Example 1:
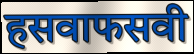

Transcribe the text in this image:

हसवाफसवी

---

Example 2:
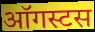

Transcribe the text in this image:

ऑगस्टस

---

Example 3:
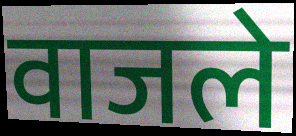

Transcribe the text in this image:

वाजले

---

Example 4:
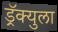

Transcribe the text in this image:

ड्रॅक्युला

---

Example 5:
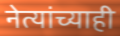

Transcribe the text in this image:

नेत्यांच्याही